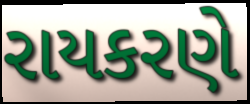
રાયકરણે